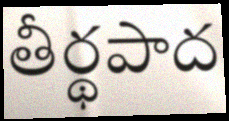
తీర్థపాద